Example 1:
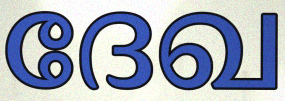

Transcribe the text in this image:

ദേഖ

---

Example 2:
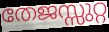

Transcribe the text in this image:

തേജസ്സുറ്റ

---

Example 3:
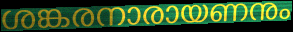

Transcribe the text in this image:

ശങ്കരനാരായണനും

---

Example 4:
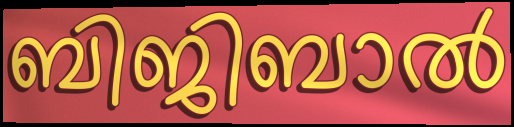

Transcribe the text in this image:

ബിജിബാൽ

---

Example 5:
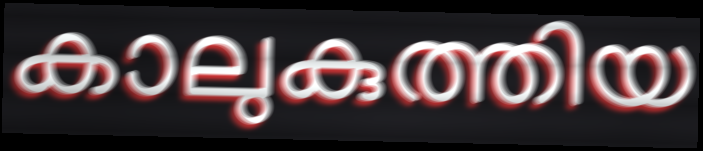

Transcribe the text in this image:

കാലുകുത്തിയ